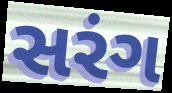
સરંગ